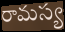
రామస్య